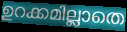
ഉറക്കമില്ലാതെ